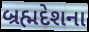
બ્રહ્મદેશના